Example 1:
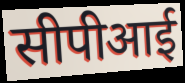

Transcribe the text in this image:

सीपीआई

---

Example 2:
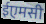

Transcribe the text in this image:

ईएमसी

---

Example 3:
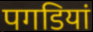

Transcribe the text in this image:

पगडियां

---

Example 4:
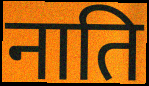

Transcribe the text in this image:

नाति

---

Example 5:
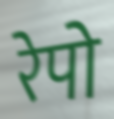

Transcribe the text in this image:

रेपो